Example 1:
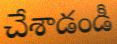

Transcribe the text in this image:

చేశాడండీ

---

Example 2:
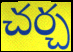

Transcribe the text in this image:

చర్చ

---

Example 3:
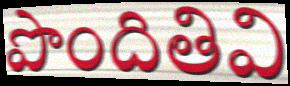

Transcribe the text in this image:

పొందితివి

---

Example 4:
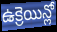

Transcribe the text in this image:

ఉక్రెయిన్లో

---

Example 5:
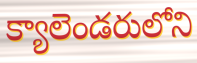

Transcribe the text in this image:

క్యాలెండరులోని